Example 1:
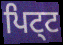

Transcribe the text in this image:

ਪਿਟ੍ਟ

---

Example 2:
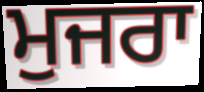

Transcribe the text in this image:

ਮੁਜਰਾ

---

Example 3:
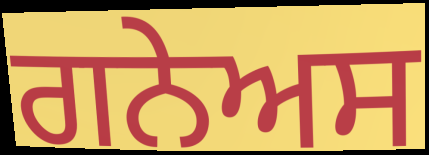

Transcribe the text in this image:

ਗਨੇਅਸ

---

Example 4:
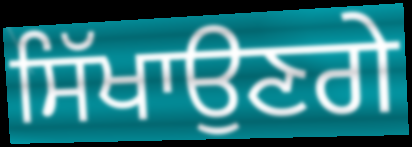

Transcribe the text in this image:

ਸਿੱਖਾਉਣਗੇ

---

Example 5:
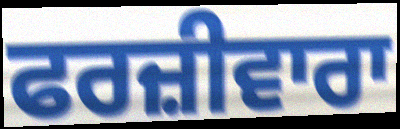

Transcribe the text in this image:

ਫਰਜ਼ੀਵਾਰਾ